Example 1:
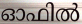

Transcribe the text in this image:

ഓഫിൽ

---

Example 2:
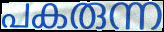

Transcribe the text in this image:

പകരുന്ന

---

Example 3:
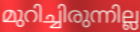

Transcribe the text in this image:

മുറിച്ചിരുന്നില്ല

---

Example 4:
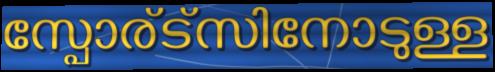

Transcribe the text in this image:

സ്പോര്ട്സിനോടുള്ള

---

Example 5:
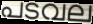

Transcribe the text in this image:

പടവല